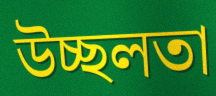
উচ্ছলতা